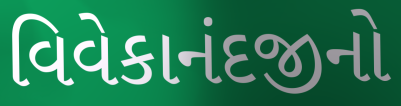
વિવેકાનંદજીનો